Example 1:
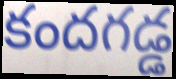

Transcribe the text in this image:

కందగడ్డ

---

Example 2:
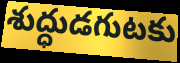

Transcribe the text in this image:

శుద్ధుడగుటకు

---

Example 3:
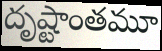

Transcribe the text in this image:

దృష్టాంతమూ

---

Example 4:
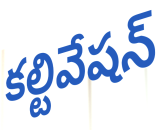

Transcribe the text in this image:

కల్టివేషన్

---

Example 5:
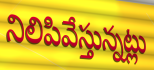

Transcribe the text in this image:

నిలిపివేస్తున్నట్లు